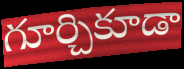
గూర్చికూడా